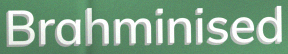
Brahminised